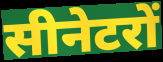
सीनेटरों